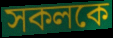
সকলকে